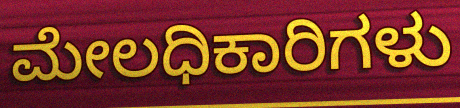
ಮೇಲಧಿಕಾರಿಗಳು